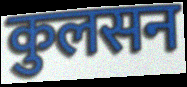
कुलसन